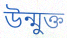
উন্মুক্ত